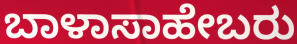
ಬಾಳಾಸಾಹೇಬರು